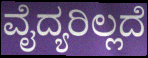
ವೈದ್ಯರಿಲ್ಲದೆ